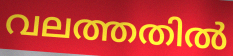
വലത്തതിൽ